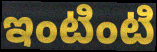
ఇంటింటి